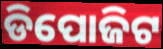
ଡିପୋଜିଟ